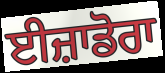
ਈਜ਼ਾਡੋਰਾ